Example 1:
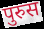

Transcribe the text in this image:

पुरुस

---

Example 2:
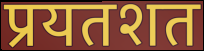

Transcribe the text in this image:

प्रयतशत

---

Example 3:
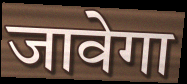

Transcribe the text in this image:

जावेगा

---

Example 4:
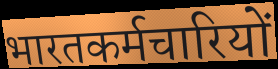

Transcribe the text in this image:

भारतकर्मचारियों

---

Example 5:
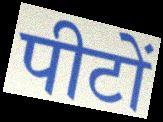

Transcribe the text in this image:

पीटों